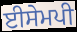
ਈਸੇਮਪੀ